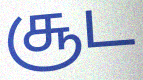
சூட